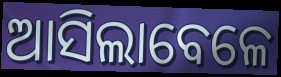
ଆସିଲାବେଳେ